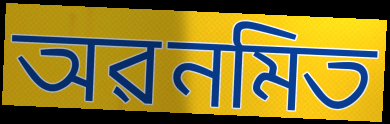
অৱনমিত